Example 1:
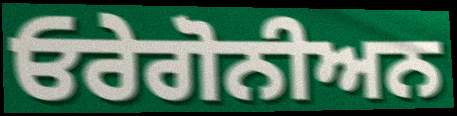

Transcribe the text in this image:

ਓਰੇਗੋਨੀਅਨ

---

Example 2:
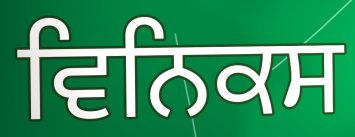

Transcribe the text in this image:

ਵਿਨਿਕਸ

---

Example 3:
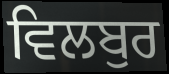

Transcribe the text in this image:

ਵਿਲਬੁਰ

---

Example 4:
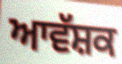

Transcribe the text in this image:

ਆਵੱਸ਼ਕ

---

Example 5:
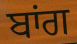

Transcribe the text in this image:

ਬਾਂਗ